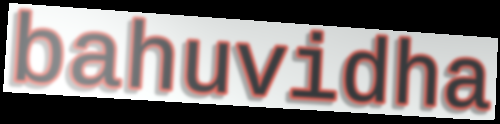
bahuvidha